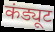
कंड्यूट